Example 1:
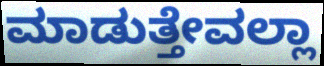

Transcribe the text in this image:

ಮಾಡುತ್ತೇವಲ್ಲಾ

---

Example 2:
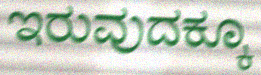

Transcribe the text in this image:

ಇರುವುದಕ್ಕೂ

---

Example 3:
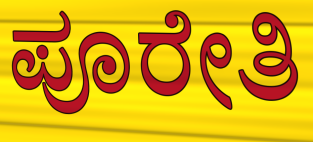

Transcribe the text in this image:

ಪೂರೇತಿ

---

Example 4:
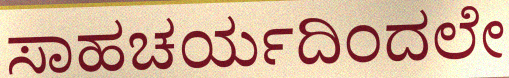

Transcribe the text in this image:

ಸಾಹಚರ್ಯದಿಂದಲೇ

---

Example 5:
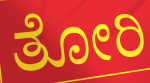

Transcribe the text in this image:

ತೋರಿ